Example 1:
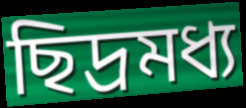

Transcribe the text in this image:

ছিদ্রমধ্য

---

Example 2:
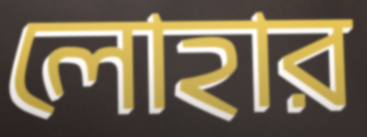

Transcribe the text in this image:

লোহার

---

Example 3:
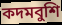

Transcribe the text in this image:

কদমবুশি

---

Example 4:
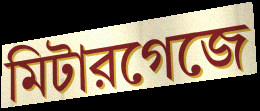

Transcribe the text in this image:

মিটারগেজে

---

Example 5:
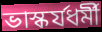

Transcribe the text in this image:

ভাস্কর্যধর্মী